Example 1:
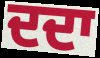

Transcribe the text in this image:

ਦਦਾ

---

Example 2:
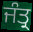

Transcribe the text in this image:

ਜੰਤ੍ਰ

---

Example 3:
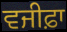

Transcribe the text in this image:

ਵਜੀਫ਼ਾ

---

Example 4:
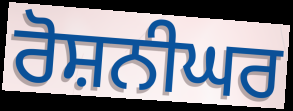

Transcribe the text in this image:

ਰੋਸ਼ਨੀਘਰ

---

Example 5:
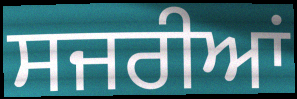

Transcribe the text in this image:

ਸਜਰੀਆਂ